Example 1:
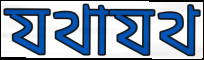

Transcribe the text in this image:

যথাযথ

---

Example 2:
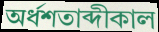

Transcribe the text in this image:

অর্ধশতাব্দীকাল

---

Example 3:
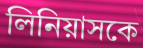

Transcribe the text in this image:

লিনিয়াসকে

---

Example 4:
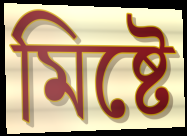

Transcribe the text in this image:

মিষ্টে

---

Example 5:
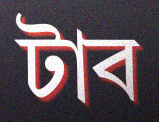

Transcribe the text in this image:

টাব